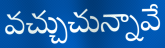
వచ్చుచున్నావే